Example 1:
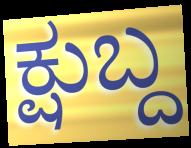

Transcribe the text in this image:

ಕ್ಷುಬ್ದ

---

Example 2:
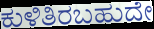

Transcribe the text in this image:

ಕುಳಿತಿರಬಹುದೇ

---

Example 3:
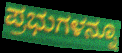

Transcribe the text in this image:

ಪ್ರಭುಗಳನ್ನೂ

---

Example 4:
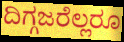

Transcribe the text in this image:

ದಿಗ್ಗಜರೆಲ್ಲರೂ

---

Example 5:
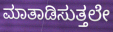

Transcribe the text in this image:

ಮಾತಾಡಿಸುತ್ತಲೇ